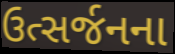
ઉત્સર્જનના